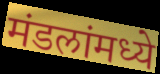
मंडलांमध्ये